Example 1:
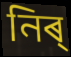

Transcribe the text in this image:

নিৰ্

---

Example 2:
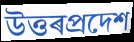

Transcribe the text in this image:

উত্তৰপ্ৰদেশ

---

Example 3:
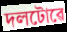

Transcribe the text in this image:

দলটোৱে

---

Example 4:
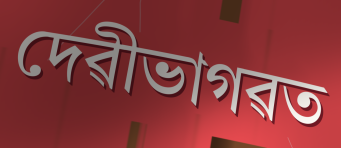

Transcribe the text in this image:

দেৱীভাগৱত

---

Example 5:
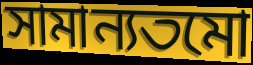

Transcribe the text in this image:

সামান্যতমো